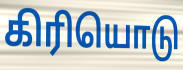
கிரியொடு